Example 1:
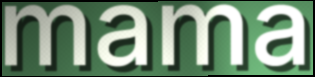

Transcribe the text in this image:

mama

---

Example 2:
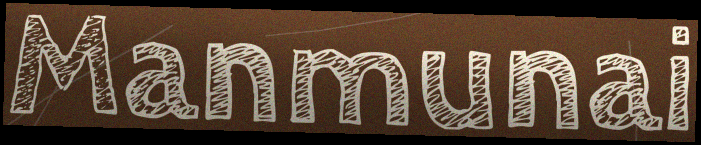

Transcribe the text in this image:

Manmunai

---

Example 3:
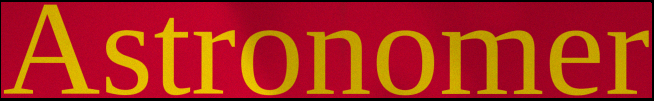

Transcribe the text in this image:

Astronomer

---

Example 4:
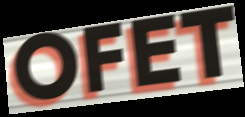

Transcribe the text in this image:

OFET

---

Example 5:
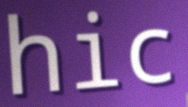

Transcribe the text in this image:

hic